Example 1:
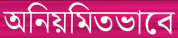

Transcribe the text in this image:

অনিয়মিতভাবে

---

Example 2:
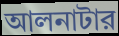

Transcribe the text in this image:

আলনাটার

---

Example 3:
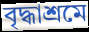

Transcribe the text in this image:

বৃদ্ধাশ্রমে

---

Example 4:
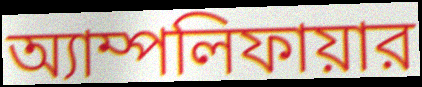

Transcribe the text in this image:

অ্যাম্পলিফায়ার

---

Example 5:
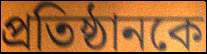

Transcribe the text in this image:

প্রতিষ্ঠানকে